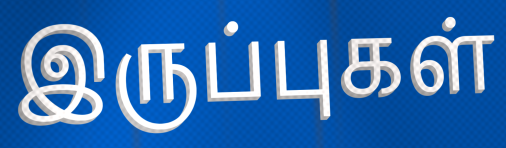
இருப்புகள்